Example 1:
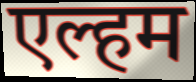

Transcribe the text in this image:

एल्हम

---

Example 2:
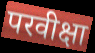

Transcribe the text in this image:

परवीक्षा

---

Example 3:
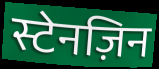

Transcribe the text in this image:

स्टेनज़िन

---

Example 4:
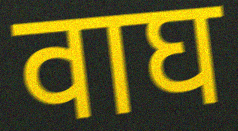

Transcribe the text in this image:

वाघ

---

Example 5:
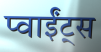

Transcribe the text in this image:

प्वाईंट्स